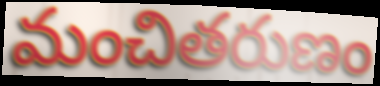
మంచితరుణం